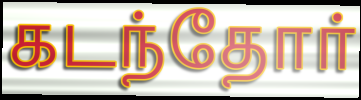
கடந்தோர்